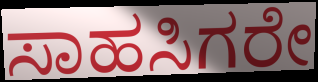
ಸಾಹಸಿಗರೇ